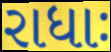
રાધાઃ